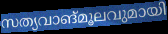
സത്യവാങ്മൂലവുമായി